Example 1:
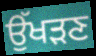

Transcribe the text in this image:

ਉੱਖੜਣ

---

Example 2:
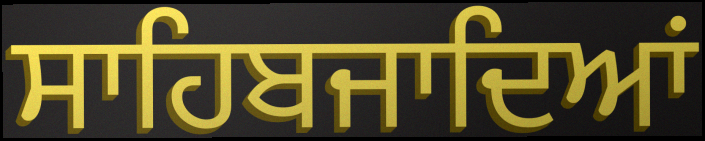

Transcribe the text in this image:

ਸਾਹਿਬਜਾਦਿਆਂ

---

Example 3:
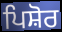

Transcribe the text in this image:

ਪਿਸ਼ੋਰ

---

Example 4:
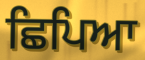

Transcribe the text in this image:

ਛਿਪਿਆ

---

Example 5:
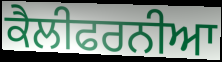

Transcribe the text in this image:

ਕੈਲੀਫਰਨੀਆ